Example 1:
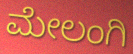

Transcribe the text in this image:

ಮೇಲಂಗಿ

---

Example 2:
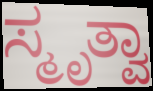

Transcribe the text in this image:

ಸ್ಮೃತ್ವಾ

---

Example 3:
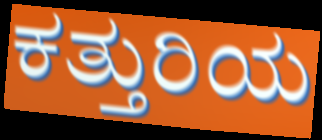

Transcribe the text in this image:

ಕತ್ತುರಿಯ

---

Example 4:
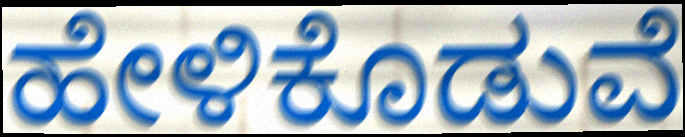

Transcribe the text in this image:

ಹೇಳಿಕೊಡುವೆ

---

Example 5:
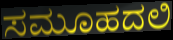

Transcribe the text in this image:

ಸಮೂಹದಲಿ